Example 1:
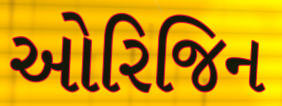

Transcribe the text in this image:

ઓરિજિન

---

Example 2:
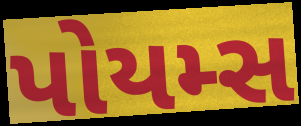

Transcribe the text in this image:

પોયમ્સ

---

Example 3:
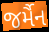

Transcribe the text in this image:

જર્મૈન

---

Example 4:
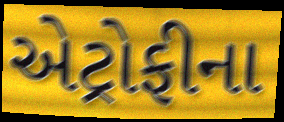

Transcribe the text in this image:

એટ્રોફીના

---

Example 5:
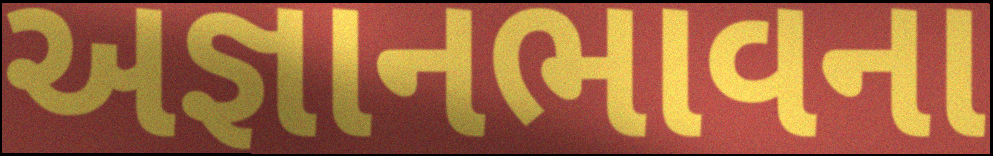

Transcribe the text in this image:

અજ્ઞાનભાવના